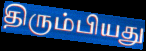
திரும்பியது